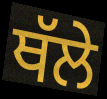
ਥੱਲੇ